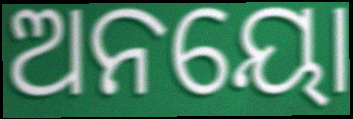
ଅନୟୋ